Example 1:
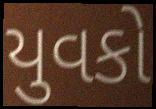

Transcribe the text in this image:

યુવકો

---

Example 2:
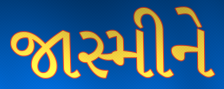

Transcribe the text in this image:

જાસ્મીને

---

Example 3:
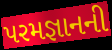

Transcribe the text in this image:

પરમજ્ઞાનની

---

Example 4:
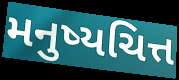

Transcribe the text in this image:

મનુષ્યચિત્ત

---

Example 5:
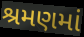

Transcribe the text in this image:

શ્રમણમાં